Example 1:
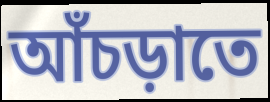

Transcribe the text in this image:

আঁচড়াতে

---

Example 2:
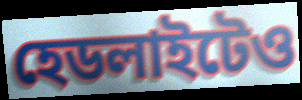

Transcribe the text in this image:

হেডলাইটেও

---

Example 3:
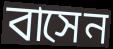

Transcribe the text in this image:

বাসেন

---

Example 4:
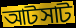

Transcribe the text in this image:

আটসাট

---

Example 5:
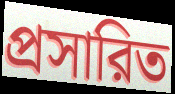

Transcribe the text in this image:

প্রসারিত